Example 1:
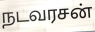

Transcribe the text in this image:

நடவரசன்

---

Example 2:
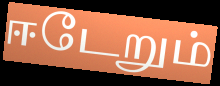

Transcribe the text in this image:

ஈடேறும்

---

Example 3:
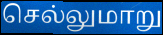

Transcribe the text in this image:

செல்லுமாறு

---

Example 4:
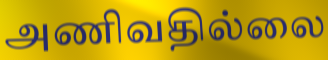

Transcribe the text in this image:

அணிவதில்லை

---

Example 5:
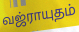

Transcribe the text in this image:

வஜ்ராயுதம்